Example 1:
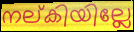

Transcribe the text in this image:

നല്കിയില്ലേ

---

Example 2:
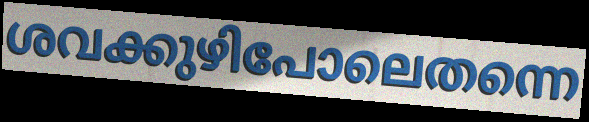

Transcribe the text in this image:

ശവക്കുഴിപോലെതന്നെ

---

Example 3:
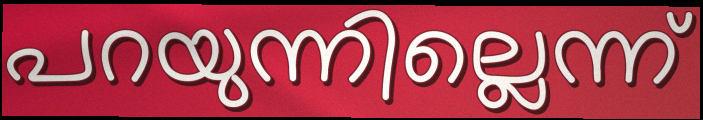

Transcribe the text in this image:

പറയുന്നില്ലെന്ന്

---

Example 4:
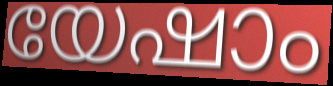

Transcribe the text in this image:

യേഷാം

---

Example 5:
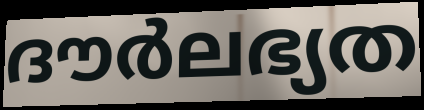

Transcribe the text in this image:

ദൗർലഭ്യത